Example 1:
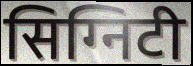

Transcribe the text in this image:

सिग्निटी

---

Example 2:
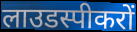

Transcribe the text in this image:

लाउडस्पीकरों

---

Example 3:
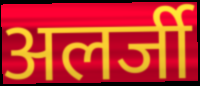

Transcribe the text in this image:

अलर्जी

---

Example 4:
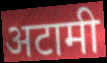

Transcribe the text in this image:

अटामी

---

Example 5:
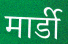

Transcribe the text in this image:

मार्डी